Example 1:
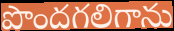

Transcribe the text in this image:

పొందగలిగాను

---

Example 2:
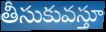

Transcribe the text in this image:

తీసుకువస్తూ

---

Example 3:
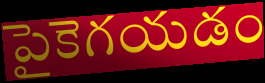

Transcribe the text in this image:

పైకెగయడం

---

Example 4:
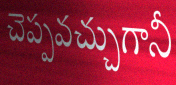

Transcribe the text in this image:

చెప్పవచ్చుగానీ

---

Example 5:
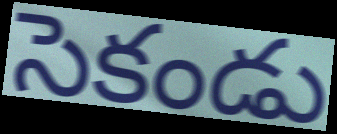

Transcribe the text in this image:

సెకండు